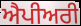
ਐਪੀਅਰੀ